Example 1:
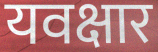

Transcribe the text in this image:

यवक्षार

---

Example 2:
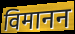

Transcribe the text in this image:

विमानन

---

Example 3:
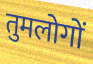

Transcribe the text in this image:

तुमलोगों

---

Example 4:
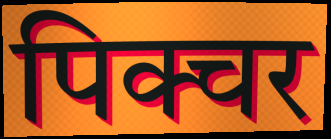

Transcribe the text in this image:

पिक्चर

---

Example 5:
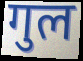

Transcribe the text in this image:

गुल